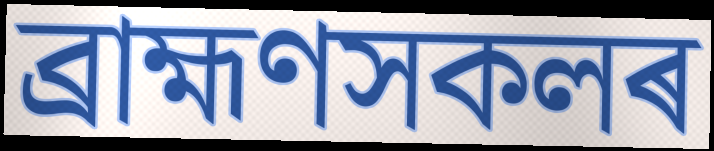
ব্ৰাহ্মণসকলৰ